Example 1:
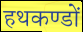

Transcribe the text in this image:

हथकण्डों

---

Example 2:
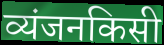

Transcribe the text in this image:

व्यंजनकिसी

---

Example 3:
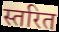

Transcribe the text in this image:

स्तरित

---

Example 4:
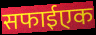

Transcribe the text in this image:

सफाईएक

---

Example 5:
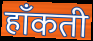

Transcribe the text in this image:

हाँकती